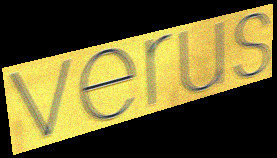
verus